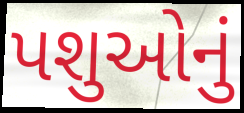
પશુઓનું